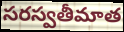
సరస్వతీమాత